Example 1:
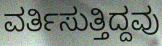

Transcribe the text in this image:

ವರ್ತಿಸುತ್ತಿದ್ದವು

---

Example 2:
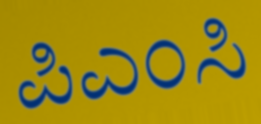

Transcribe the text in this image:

ಪಿಎಂಸಿ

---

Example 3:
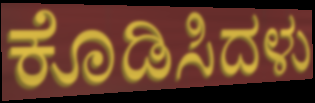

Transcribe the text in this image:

ಕೊಡಿಸಿದಳು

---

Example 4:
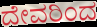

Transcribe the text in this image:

ದೇವರಿಂದ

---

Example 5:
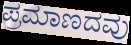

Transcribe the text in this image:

ಪ್ರಮಾಣದವು